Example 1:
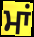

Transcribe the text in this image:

ਮਾਂ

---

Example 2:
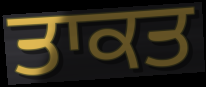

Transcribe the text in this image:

ਤਾਕਤ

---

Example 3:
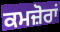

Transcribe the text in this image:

ਕਮਜ਼ੋਰਾਂ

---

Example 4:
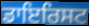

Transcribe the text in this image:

ਡਾਇਰਿਸਟ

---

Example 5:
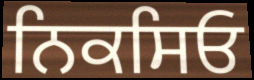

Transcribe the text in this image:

ਨਿਕਸਿਓ